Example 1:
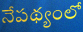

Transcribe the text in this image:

నేపథ్యంలో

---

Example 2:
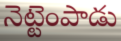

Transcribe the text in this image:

నెట్టెంపాడు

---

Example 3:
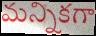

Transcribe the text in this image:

మన్నికగా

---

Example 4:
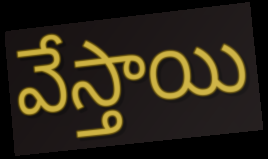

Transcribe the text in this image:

వేస్తాయి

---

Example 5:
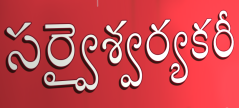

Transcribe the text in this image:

సర్వైశ్వర్యకరీ